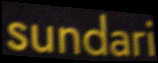
sundari